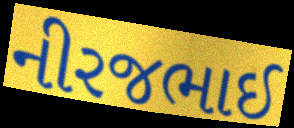
નીરજભાઈ